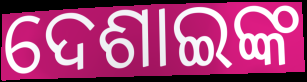
ଦେଶାଇଙ୍କ